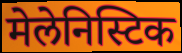
मेलेनिस्टिक